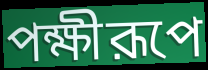
পক্ষীরূপে